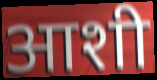
आशी